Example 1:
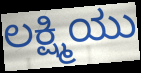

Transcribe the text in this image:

ಲಕ್ಷ್ಮಿಯು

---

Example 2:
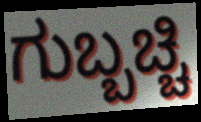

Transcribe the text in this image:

ಗುಬ್ಬಚ್ಚಿ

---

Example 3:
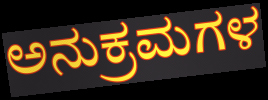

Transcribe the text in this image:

ಅನುಕ್ರಮಗಳ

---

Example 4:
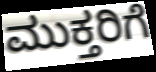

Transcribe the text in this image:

ಮುಕ್ತರಿಗೆ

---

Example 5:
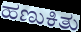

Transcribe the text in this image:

ಹಣುಕಿತು